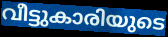
വീട്ടുകാരിയുടെ